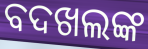
ବଦଖଲଙ୍କ